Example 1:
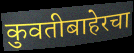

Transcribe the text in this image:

कुवतीबाहेरचा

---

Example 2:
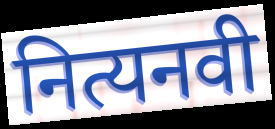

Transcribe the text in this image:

नित्यनवी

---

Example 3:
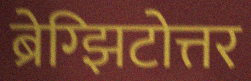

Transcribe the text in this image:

ब्रेग्झिटोत्तर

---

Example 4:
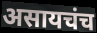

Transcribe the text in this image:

असायचंच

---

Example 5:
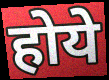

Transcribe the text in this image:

होये